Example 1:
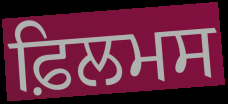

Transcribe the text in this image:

ਫ਼ਿਲਮਸ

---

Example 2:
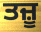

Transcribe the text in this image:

ਤਜ਼ੂ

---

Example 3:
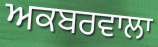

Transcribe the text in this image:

ਅਕਬਰਵਾਲਾ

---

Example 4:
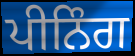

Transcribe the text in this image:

ਪੀਨਿੰਗ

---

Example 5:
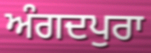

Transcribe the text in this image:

ਅੰਗਦਪੁਰਾ